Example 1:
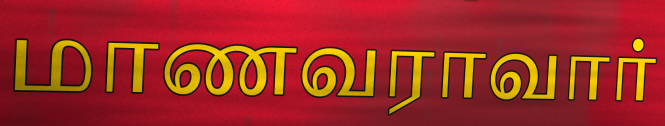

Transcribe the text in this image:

மாணவராவார்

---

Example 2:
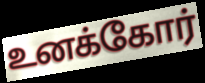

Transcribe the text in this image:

உனக்கோர்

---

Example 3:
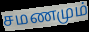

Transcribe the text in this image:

சமணமும்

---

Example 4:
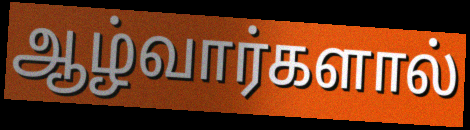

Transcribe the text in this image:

ஆழ்வார்களால்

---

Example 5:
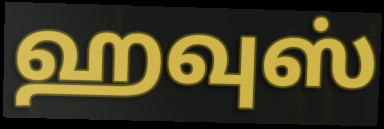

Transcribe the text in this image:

ஹவுஸ்